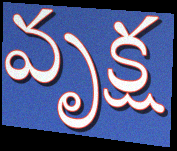
వృక్ష